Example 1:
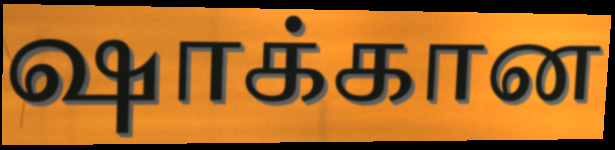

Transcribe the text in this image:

ஷாக்கான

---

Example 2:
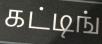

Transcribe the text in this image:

கட்டிங்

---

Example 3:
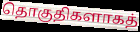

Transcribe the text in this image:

தொகுதிகளாகத்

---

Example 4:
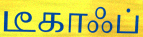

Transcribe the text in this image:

டீகாஃப்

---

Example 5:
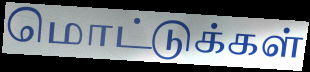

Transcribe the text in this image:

மொட்டுக்கள்